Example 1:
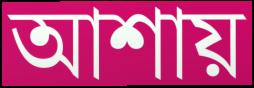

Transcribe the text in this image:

আশায়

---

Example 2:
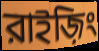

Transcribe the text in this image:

রাইজ়িং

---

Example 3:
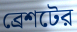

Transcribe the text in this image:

ব্রেশটের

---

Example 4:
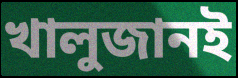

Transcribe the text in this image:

খালুজানই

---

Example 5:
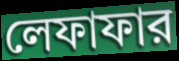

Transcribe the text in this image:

লেফাফার